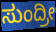
ಸುಂದ್ರೀ